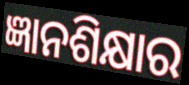
ଜ୍ଞାନଶିକ୍ଷାର